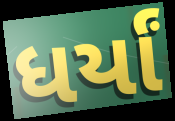
ધર્યાં